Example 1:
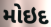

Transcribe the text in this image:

મોઇદ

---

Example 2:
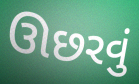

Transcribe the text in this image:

ઊછરવું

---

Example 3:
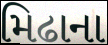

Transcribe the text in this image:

મિઢાના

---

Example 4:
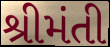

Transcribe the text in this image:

શ્રીમંતી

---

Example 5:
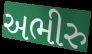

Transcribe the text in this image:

અભીરુ